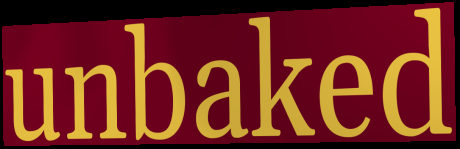
unbaked